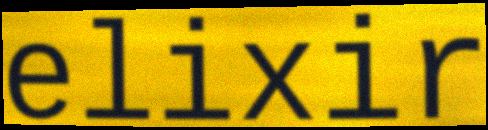
elixir